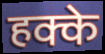
हक्के